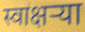
स्वाक्षऱ्या